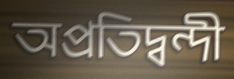
অপ্ৰতিদ্বন্দী